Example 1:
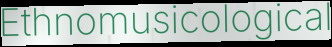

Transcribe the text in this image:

Ethnomusicological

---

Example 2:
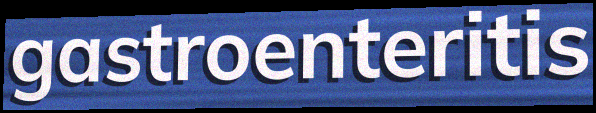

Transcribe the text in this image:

gastroenteritis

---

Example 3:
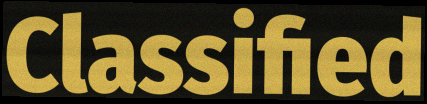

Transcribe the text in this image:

Classified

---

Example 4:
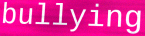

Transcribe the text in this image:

bullying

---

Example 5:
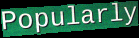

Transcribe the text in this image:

Popularly